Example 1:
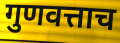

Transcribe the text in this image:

गुणवत्ताच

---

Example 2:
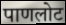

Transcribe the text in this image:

पाणलोट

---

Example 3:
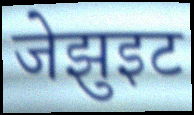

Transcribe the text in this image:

जेझुइट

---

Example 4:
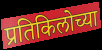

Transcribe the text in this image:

प्रतिकिलोच्या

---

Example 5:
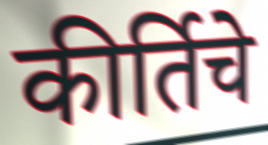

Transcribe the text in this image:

कीर्तिचे